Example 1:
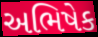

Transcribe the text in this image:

અભિષેક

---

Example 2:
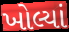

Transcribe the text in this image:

ખોલ્યાં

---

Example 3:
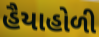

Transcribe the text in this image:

હૈયાહોળી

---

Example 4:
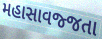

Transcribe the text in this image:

મહાસાવજ્જતા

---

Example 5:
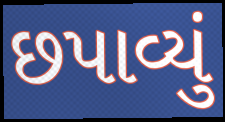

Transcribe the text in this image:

છપાવ્યું